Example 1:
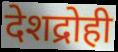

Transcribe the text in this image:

देशद्रोही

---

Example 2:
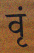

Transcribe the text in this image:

वृं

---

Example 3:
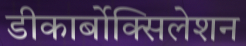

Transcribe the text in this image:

डीकार्बोक्सिलेशन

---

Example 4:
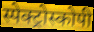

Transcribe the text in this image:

स्पेक्ट्रोस्कोपी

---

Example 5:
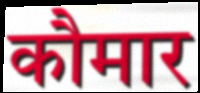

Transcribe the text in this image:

कौमार